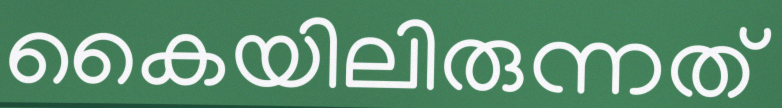
കൈയിലിരുന്നത്